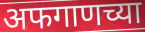
अफगाणच्या